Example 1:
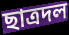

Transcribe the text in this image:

ছাত্রদল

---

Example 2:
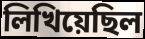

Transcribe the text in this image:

লিখিয়েছিল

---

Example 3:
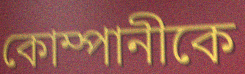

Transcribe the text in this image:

কোম্পানীকে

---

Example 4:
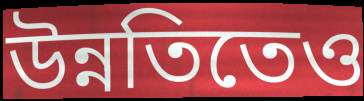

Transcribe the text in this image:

উন্নতিতেও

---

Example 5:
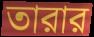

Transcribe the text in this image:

তারার